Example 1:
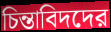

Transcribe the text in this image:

চিন্তাবিদদের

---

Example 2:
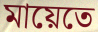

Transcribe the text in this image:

মায়েতে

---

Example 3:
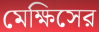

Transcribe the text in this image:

মেক্ষিসের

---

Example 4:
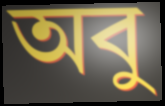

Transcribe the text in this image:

অবু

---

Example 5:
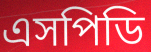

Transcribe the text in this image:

এসপিডি